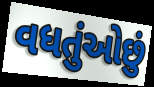
વધતુંઓછું